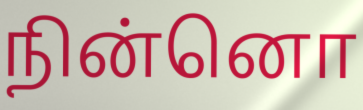
நின்னொ